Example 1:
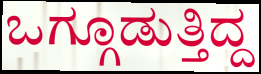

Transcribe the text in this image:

ಒಗ್ಗೂಡುತ್ತಿದ್ದ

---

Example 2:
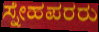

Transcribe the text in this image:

ಸ್ನೇಹಪರರು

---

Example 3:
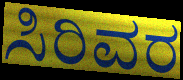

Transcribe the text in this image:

ಸಿರಿವರ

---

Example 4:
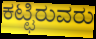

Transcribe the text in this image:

ಕಟ್ಟಿರುವರು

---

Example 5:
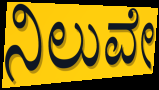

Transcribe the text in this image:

ನಿಲುವೇ